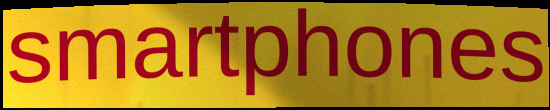
smartphones